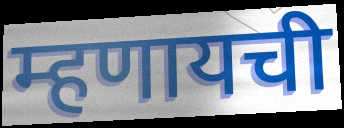
म्हणायची